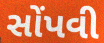
સોંપવી